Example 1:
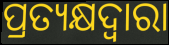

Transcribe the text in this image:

ପ୍ରତ୍ୟକ୍ଷଦ୍ବାରା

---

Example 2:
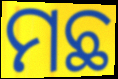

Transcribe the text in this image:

ମଛ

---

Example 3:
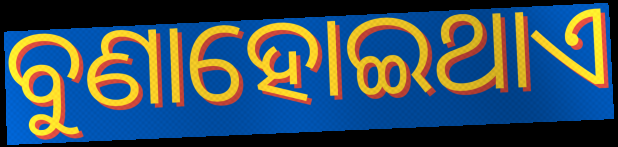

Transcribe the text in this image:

ବୁଣାହୋଇଥାଏ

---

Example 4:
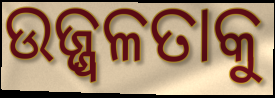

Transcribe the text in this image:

ଉଜ୍ଜ୍ୱଳତାକୁ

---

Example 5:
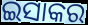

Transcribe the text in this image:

ଇସାକର